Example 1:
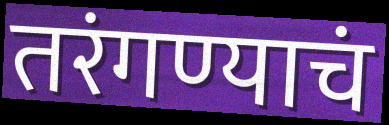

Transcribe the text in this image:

तरंगण्याचं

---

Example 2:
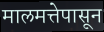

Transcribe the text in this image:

मालमत्तेपासून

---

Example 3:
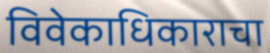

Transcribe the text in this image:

विवेकाधिकाराचा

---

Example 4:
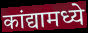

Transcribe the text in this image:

कांद्यामध्ये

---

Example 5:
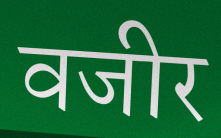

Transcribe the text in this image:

वजीर